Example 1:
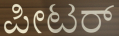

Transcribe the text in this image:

ಪೀಟರ್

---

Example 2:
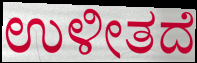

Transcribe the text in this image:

ಉಳೀತದೆ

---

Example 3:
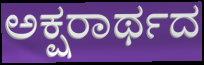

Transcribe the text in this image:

ಅಕ್ಷರಾರ್ಥದ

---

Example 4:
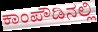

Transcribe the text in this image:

ಕಾಂಪೌಡಿನಲ್ಲಿ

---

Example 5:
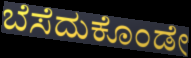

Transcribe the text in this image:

ಬೆಸೆದುಕೊಂಡೇ